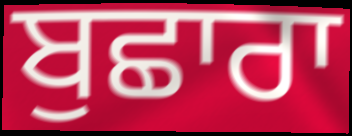
ਬੁਛਾਰਾ